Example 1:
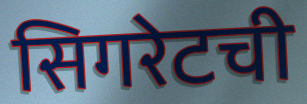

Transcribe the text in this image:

सिगरेटची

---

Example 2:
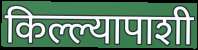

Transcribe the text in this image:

किल्ल्यापाशी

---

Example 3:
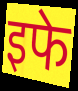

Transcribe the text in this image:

इफे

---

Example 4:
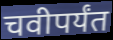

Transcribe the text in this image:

चवीपर्यंत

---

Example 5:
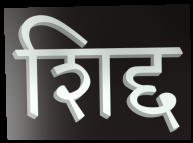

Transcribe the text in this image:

शिद्द